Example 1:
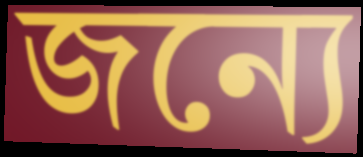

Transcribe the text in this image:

জন্যে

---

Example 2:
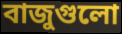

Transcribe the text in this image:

বাজুগুলো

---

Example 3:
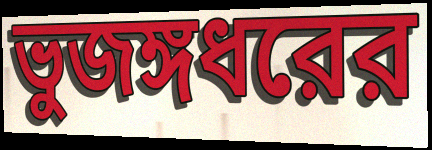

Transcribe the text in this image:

ভুজঙ্গধরের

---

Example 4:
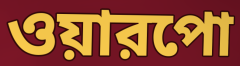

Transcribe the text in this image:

ওয়ারপো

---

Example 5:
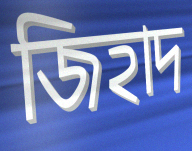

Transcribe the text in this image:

জিহাদ